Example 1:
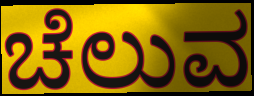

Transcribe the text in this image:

ಚೆಲುವ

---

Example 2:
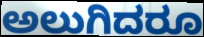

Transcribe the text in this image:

ಅಲುಗಿದರೂ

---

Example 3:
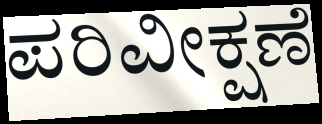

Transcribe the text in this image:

ಪರಿವೀಕ್ಷಣೆ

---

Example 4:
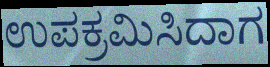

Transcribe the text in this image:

ಉಪಕ್ರಮಿಸಿದಾಗ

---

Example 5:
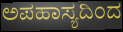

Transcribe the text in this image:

ಅಪಹಾಸ್ಯದಿಂದ